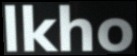
lkho